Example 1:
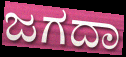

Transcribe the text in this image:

ಜಗದಾ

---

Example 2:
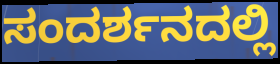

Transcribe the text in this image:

ಸಂದರ್ಶನದಲ್ಲಿ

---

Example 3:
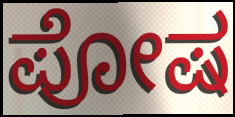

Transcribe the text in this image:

ಪೋಷ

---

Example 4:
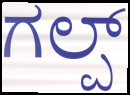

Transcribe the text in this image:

ಗಲ್ಪ್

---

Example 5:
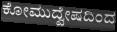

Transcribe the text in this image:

ಕೋಮುದ್ವೇಷದಿಂದ